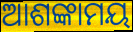
ଆଶଙ୍କାମୟ